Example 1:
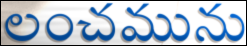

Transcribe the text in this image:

లంచమును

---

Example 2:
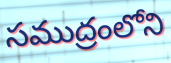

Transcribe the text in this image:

సముద్రంలోని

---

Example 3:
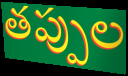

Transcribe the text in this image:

తప్పుల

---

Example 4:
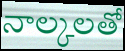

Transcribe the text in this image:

నాల్కలతో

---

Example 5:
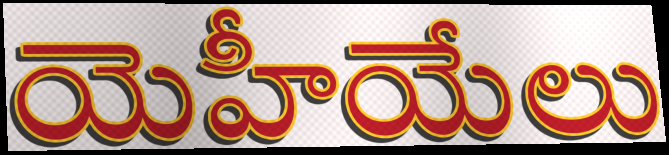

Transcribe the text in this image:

యెహీయేలు